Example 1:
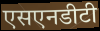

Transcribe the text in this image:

एसएनडीटी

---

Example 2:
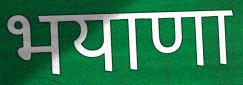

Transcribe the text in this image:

भयाणा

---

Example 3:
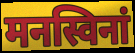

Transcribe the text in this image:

मनस्विनां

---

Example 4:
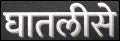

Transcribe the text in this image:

घातलीसे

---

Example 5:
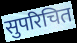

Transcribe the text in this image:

सुपरिचित